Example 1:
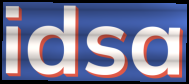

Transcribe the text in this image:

idsa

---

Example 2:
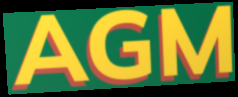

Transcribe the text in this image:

AGM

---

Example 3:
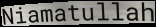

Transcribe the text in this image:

Niamatullah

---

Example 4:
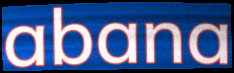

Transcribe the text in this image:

abana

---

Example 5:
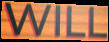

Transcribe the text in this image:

WILL